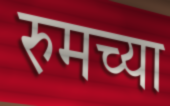
रुमच्या